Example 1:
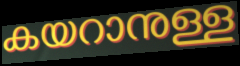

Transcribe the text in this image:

കയറാനുള്ള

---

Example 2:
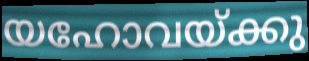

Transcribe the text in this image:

യഹോവയ്ക്കു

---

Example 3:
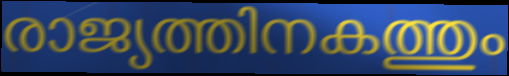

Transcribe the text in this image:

രാജ്യത്തിനകത്തും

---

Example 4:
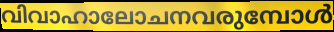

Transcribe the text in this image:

വിവാഹാലോചനവരുമ്പോൾ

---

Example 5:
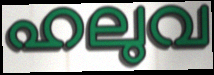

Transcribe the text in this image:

ഹലുവ